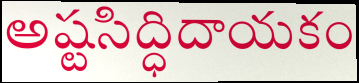
అష్టసిద్ధిదాయకం